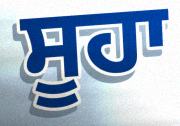
ਸੂਹਾ